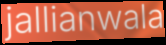
jallianwala